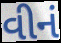
વીનં